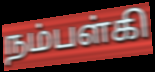
நம்பள்கி